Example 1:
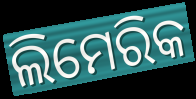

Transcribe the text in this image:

ଲିମେରିକ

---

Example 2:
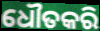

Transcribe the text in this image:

ଧୌତକରି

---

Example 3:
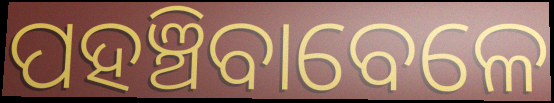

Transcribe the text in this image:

ପହଞ୍ଚିବାବେଳେ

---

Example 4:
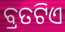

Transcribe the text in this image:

ବ୍ରତଟିଏ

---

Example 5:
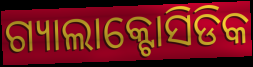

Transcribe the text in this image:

ଗ୍ୟାଲାକ୍ଟୋସିଡିକ